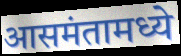
आसमंतामध्ये